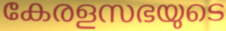
കേരളസഭയുടെ